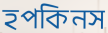
হপকিনস